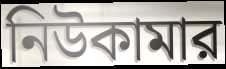
নিউকামার